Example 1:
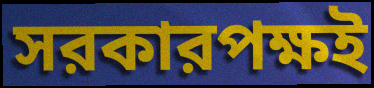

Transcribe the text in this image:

সরকারপক্ষই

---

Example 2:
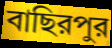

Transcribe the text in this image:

বাছিরপুর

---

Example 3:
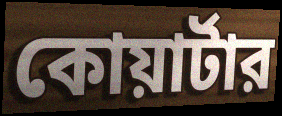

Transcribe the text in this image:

কোয়ার্টার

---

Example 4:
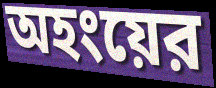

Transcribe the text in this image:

অহংয়ের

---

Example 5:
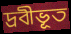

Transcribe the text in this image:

দ্রবীভূত